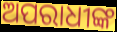
ଅପରାଧୀଙ୍କ